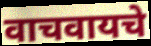
वाचवायचे